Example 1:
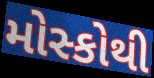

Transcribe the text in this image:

મોસ્કોથી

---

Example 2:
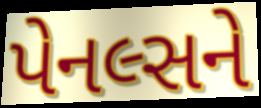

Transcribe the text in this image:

પેનલ્સને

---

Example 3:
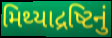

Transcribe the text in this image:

મિથ્યાદ્રષ્ટિનું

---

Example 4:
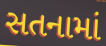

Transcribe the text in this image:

સતનામાં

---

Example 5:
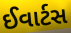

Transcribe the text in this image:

ઈવાર્ટસ